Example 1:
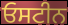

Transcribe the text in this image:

ਓਸਟੀਨ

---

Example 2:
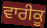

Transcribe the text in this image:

ਵਾਰੀਕੂ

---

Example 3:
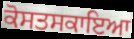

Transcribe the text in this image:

ਕੋਸਤਸਕਾਇਆ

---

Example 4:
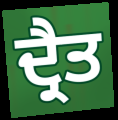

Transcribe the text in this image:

ਦ੍ਰੈਤ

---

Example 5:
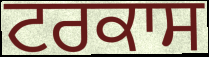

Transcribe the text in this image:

ਟਰਕਾਸ